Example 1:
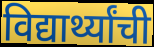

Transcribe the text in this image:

विद्यार्थ्यांची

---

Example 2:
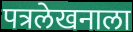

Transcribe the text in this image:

पत्रलेखनाला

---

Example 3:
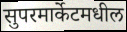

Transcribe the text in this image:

सुपरमार्केटमधील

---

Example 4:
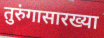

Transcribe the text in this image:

तुरुंगासारख्या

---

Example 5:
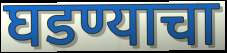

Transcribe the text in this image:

घडण्याचा